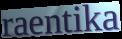
raentika